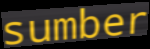
sumber